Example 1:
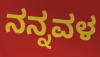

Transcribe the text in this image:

ನನ್ನವಳ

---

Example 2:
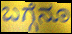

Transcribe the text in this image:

ಬಗ್ಗೆನೂ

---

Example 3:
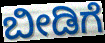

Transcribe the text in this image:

ಬೀಡಿಗೆ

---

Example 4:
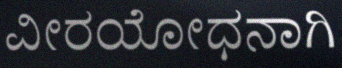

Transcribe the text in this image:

ವೀರಯೋಧನಾಗಿ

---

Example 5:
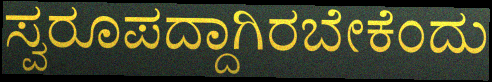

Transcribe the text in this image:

ಸ್ವರೂಪದ್ದಾಗಿರಬೇಕೆಂದು